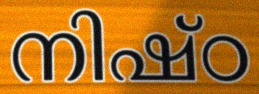
നിഷ്ഠ